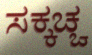
ಸಕ್ಕಚ್ಚ